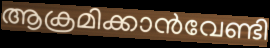
ആക്രമിക്കാൻവേണ്ടി